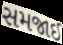
સમજાઈ